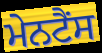
ਮੇਨਟੈਂਸ